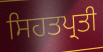
ਸਿਹਤਪ੍ਰਤੀ